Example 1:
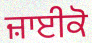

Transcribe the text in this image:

ਜ਼ਾਈਕੋ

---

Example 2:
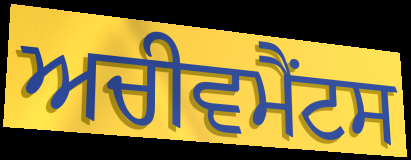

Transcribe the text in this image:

ਅਚੀਵਮੈਂਟਸ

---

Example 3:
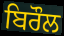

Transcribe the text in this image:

ਬਿਰੌਲ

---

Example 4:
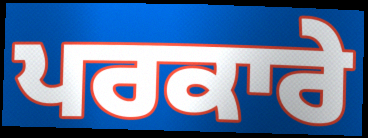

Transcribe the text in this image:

ਪਰਕਾਰੇ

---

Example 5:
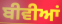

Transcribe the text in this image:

ਬੀਵੀਆਂ